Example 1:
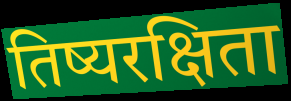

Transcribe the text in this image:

तिष्यरक्षिता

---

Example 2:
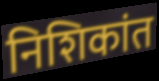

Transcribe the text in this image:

निशिकांत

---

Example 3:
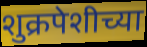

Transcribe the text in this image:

शुक्रपेशीच्या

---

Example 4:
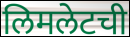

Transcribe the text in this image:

लिमलेटची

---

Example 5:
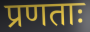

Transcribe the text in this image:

प्रणताः